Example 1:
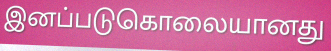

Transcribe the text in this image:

இனப்படுகொலையானது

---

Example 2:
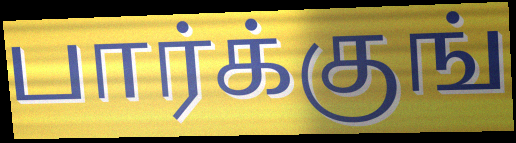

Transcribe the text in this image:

பார்க்குங்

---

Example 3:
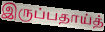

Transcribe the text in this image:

இருப்பதாய்த்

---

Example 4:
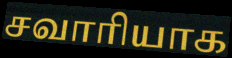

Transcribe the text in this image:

சவாரியாக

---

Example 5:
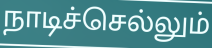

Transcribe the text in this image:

நாடிச்செல்லும்